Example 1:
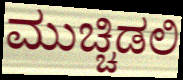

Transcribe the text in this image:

ಮುಚ್ಚಿಡಲಿ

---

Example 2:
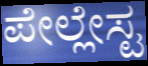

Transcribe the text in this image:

ಪೇಲ್ಲೇಸ್ಟ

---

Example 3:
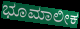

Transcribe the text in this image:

ಭೂಮಾಲೀಕ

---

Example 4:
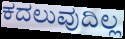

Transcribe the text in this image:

ಕದಲುವುದಿಲ್ಲ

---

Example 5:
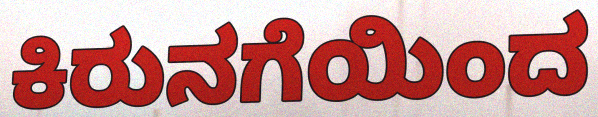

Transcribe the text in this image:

ಕಿರುನಗೆಯಿಂದ